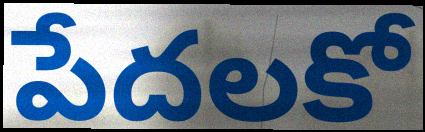
పేదలకో